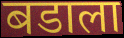
बडाला